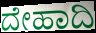
ದೇಹಾದಿ